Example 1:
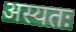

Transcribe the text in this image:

अस्यतः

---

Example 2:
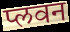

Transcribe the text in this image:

प्लवन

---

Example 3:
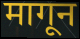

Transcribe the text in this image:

मागून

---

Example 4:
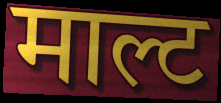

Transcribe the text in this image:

माल्ट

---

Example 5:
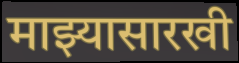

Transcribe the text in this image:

माझ्यासारखी